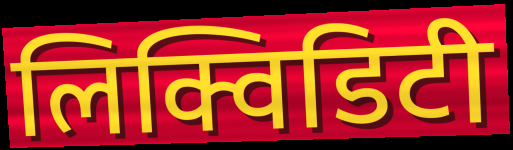
लिक्विडिटी